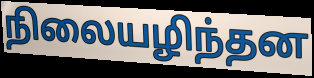
நிலையழிந்தன